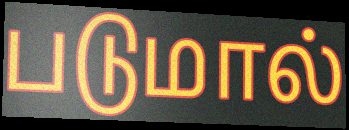
படுமால்